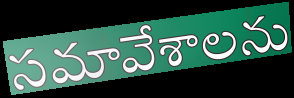
సమావేశాలను